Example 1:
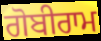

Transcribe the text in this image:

ਗੋਬੀਰਾਮ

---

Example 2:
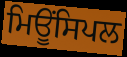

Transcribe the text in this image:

ਮਿਊਂਸਿਪਲ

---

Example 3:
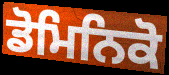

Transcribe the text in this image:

ਡੋਮਿਨਿਕੋ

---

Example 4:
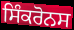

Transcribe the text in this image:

ਸਿੰਕਰੋਨਸ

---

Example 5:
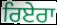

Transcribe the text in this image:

ਰਿਏਰਾ